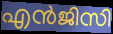
എൻജിസി